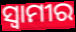
ସ୍ଵାମୀର